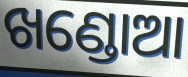
ଖଣ୍ଡୋଆ